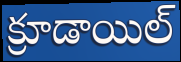
క్రూడాయిల్